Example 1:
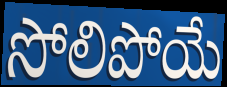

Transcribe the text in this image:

సోలిపోయే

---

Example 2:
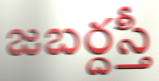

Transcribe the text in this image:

జబర్దస్తీ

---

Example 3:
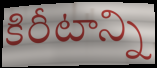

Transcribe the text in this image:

కిరీటాన్ని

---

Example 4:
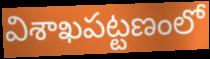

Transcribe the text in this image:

విశాఖపట్టణంలో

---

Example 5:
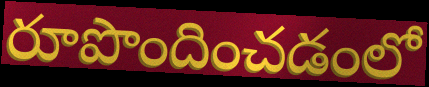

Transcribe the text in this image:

రూపొందించడంలో